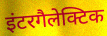
इंटरगैलेक्टिक